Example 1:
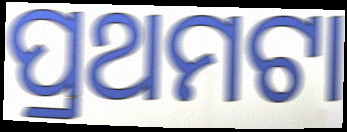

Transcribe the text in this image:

ପ୍ରଥମଟା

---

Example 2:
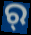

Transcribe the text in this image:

ର୍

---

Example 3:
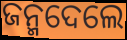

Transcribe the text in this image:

ଜନ୍ମଦେଲେ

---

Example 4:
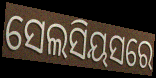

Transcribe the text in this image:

ସେଲସିୟସରେ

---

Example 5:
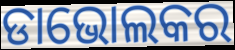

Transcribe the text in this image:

ଡାଭୋଲକର